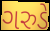
ગરુડે